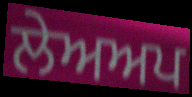
ਲੇਅਅਪ